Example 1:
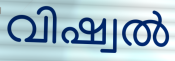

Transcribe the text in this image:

വിഷ്വൽ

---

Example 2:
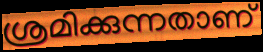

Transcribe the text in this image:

ശ്രമിക്കുന്നതാണ്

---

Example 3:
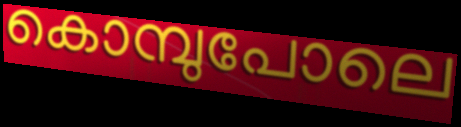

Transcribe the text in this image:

കൊമ്പുപോലെ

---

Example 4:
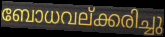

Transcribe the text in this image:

ബോധവല്ക്കരിച്ചു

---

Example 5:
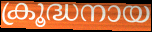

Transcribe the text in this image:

ക്രൂദ്ധനായ